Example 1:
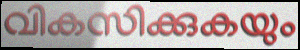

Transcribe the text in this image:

വികസിക്കുകയും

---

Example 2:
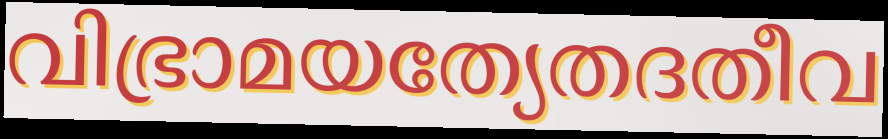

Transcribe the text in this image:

വിഭ്രാമയത്യേതദതീവ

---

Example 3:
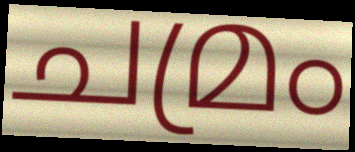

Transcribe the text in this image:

ചമ്രം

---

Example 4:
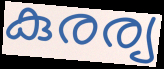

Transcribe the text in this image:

കുരര്യ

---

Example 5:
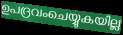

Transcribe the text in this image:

ഉപദ്രവംചെയ്യുകയില്ല